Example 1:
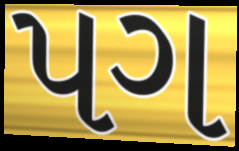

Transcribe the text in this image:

પગ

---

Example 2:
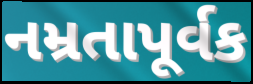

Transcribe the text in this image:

નમ્રતાપૂર્વક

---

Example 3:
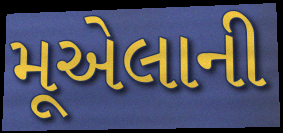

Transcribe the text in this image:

મૂએલાની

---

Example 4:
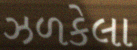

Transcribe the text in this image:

ઝળકેલા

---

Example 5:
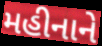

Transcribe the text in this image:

મહીનાને